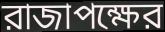
রাজাপক্ষের